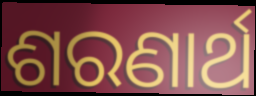
ଶରଣାର୍ଥ